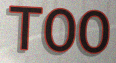
TOO